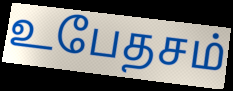
உபேதசம்